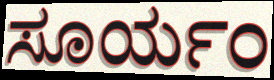
ಸೂರ್ಯಂ